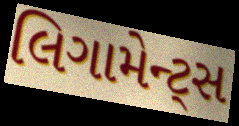
લિગામેન્ટ્સ